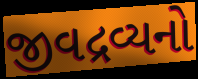
જીવદ્રવ્યનો